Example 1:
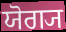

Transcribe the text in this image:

ਯੋਗ੍ਯ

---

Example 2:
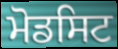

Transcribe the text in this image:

ਮੋਡਸਿਟ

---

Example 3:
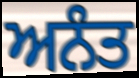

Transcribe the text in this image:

ਅਨੰਤ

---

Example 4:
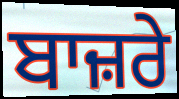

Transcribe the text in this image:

ਬਾਜ਼ਰੇ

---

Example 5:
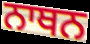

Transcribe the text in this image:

ਨਾਥਨ